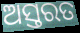
ଅସ୍ତରତ